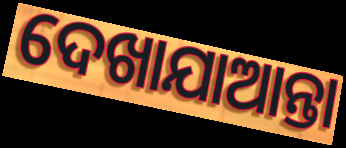
ଦେଖାଯାଆନ୍ତା